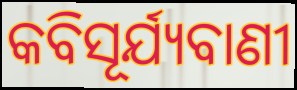
କବିସୂର୍ଯ୍ୟବାଣୀ